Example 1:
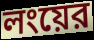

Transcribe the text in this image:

লংয়ের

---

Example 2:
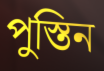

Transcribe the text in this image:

পুস্তিন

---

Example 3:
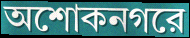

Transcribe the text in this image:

অশোকনগরে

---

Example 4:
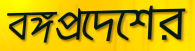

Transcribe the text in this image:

বঙ্গপ্রদেশের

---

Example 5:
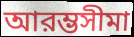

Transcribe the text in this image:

আরম্ভসীমা